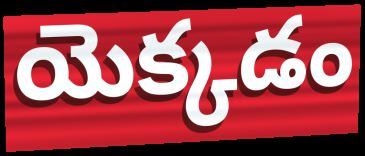
యెక్కడం